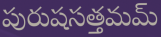
పురుషసత్తమమ్